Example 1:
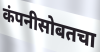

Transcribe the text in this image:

कंपनीसोबतचा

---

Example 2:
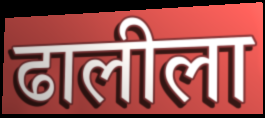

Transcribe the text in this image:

ढालीला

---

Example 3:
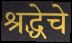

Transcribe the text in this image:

श्रद्धेचे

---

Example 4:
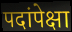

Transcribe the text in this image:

पदांपेक्षा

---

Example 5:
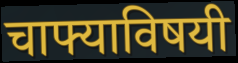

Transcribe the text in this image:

चाफ्याविषयी